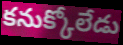
కనుక్కోలేడు